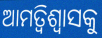
ଆମତ୍ବିଶ୍ୱାସକୁ